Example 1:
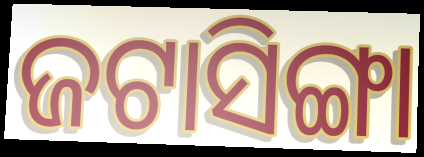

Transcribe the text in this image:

ଜଟାସିଙ୍ଗା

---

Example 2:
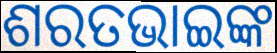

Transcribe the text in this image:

ଶରତଭାଇଙ୍କ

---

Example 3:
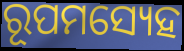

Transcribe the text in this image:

ରୂପମସ୍ୟେହ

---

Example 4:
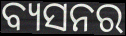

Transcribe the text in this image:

ବ୍ୟସନର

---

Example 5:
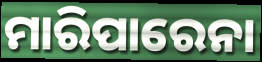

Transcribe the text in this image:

ମାରିପାରେନା